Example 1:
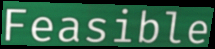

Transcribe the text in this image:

Feasible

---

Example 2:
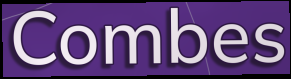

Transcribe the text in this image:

Combes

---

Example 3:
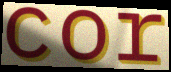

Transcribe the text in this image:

cor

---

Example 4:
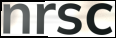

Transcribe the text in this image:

nrsc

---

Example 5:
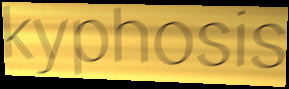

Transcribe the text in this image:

kyphosis